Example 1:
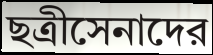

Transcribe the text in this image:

ছত্রীসেনাদের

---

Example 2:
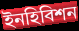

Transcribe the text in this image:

ইনহিবিশন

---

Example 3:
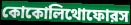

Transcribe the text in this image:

কোকোলিথোফোরস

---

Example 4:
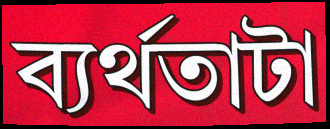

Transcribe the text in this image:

ব্যর্থতাটা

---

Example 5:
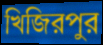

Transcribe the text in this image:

খিজিরপুর